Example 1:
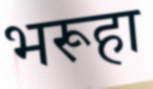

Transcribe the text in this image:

भरूहा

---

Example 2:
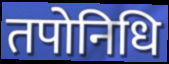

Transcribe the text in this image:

तपोनिधि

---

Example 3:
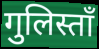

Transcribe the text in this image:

गुलिस्ताँ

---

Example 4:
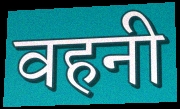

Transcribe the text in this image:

वहनी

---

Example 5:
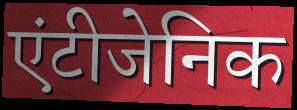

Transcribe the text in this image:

एंटीजेनिक